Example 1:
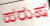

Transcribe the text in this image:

ಹರುಷ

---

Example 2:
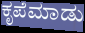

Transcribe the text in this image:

ಕೃಪೆಮಾಡು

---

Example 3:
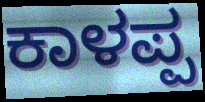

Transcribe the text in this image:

ಕಾಳಪ್ಪ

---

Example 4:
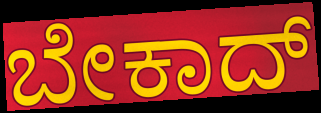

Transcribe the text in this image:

ಬೇಕಾದ್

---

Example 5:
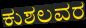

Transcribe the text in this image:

ಕುಶಲವರ